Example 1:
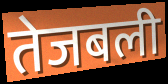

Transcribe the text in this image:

तेजबली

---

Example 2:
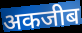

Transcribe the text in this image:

अकजीब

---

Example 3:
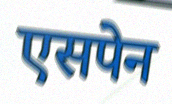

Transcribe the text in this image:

एसपेन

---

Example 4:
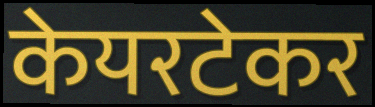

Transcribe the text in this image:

केयरटेकर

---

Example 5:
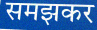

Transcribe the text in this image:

समझकर